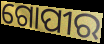
ଗୋପୀର